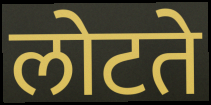
लोटते